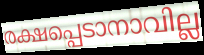
രക്ഷപ്പെടാനാവില്ല